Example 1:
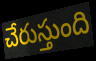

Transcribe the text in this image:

చేరుస్తుంది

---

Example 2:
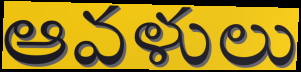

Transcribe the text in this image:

ఆవళులు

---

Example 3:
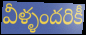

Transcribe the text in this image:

వీళ్ళందరికీ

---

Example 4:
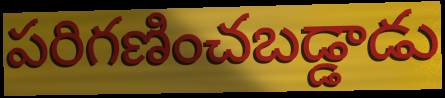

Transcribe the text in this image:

పరిగణించబడ్డాడు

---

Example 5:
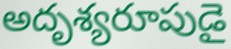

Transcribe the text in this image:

అదృశ్యరూపుడై